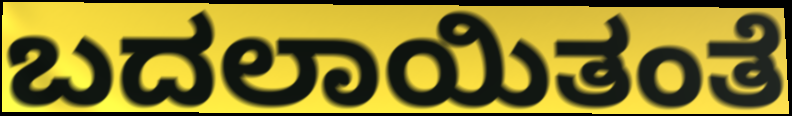
ಬದಲಾಯಿತಂತೆ